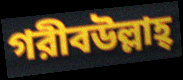
গরীবউল্লাহ্